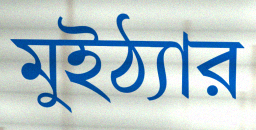
মুইঠ্যার